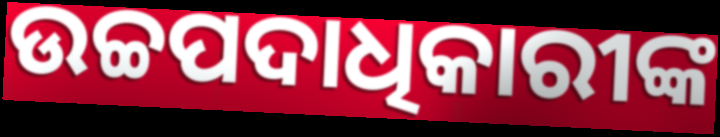
ଉଚ୍ଚପଦାଧିକାରୀଙ୍କ